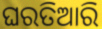
ଘରତିଆରି